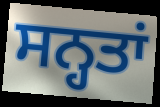
ਸਨ੍ਹਤਾਂ